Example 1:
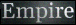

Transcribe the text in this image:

Empire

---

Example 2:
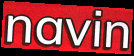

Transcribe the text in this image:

navin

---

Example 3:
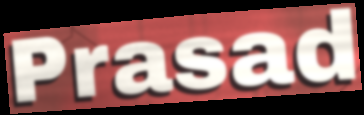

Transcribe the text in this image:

Prasad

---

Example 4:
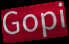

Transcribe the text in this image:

Gopi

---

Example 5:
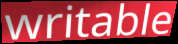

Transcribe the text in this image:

writable